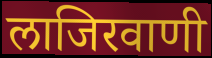
लाजिरवाणी